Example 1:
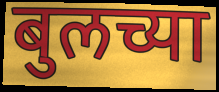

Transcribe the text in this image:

बुलच्या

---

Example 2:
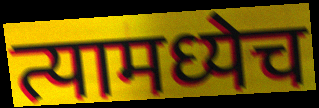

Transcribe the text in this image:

त्यामध्येच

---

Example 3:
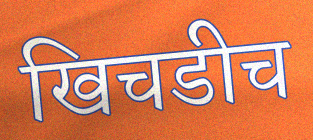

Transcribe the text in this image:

खिचडीच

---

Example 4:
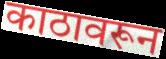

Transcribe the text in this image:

काठावरून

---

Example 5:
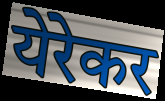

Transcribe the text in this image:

येरेकर